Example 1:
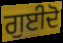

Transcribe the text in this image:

ਗੁਈਦੋ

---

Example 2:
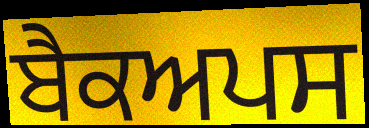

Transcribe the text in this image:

ਬੈਕਅਪਸ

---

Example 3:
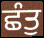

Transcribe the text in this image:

ਛੰਤੁ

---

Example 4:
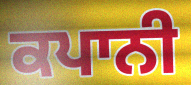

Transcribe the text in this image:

ਕਪਾਨੀ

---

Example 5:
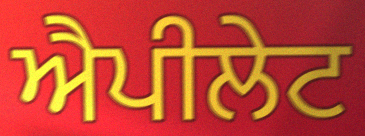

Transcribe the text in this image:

ਐਪੀਲੇਟ